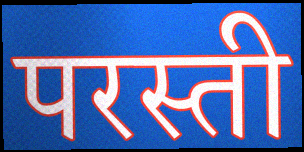
परस्ती